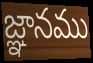
జ్ఞానము